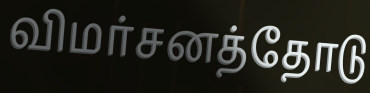
விமர்சனத்தோடு